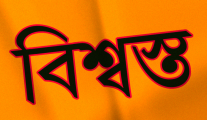
বিশ্বস্ত